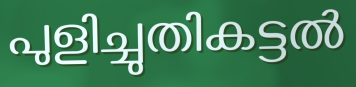
പുളിച്ചുതികട്ടൽ